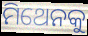
ମିଥେନକୁ